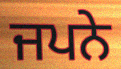
ਜਪਨੇ